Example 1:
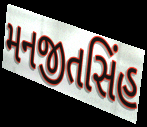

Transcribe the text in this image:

મનજીતસિંહ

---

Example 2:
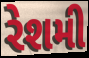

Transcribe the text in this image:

રેશમી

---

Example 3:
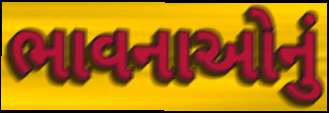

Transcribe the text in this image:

ભાવનાઓનું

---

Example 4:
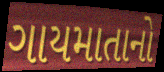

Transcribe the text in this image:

ગાયમાતાનો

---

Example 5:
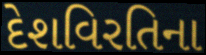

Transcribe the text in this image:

દેશવિરતિના